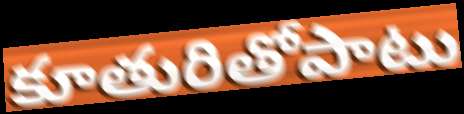
కూతురితోపాటు